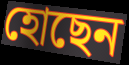
হোছেন